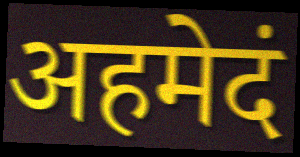
अहमेदं